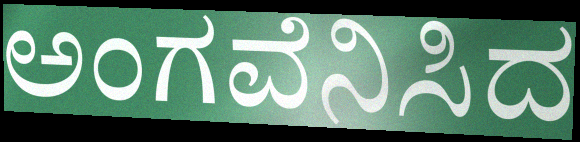
ಅಂಗವೆನಿಸಿದ